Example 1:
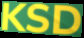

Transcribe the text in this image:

KSD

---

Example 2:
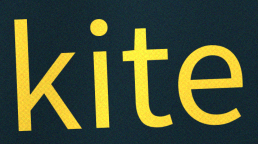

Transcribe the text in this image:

kite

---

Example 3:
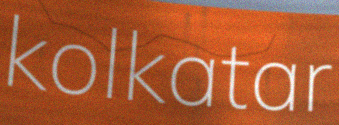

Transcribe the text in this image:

kolkatar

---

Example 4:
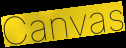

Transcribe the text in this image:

Canvas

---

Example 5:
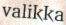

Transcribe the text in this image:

valikka